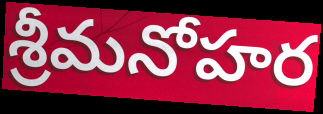
శ్రీమనోహర